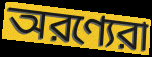
অরণ্যেরা